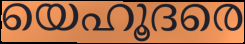
യെഹൂദരെ